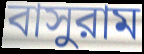
বাসুরাম